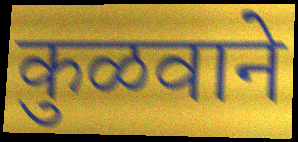
कुळवाने